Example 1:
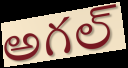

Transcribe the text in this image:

అగల్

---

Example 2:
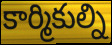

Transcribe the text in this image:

కార్మికుల్ని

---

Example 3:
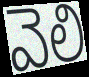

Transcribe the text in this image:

వెలి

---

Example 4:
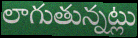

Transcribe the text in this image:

లాగుతున్నట్లు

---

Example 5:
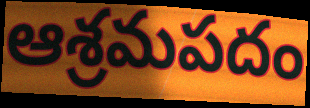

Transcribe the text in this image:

ఆశ్రమపదం